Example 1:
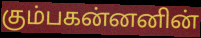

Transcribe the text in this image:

கும்பகன்னனின்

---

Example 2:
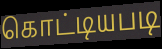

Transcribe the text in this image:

கொட்டியபடி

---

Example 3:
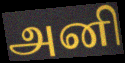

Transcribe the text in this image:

அனி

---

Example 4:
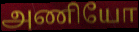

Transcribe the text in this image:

அணியோ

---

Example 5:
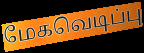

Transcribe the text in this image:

மேகவெடிப்பு